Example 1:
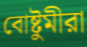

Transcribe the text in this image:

বোষ্টুমীরা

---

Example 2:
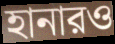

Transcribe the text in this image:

হানারও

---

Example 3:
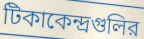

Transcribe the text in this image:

টিকাকেন্দ্রগুলির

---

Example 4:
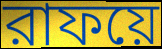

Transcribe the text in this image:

রাফয়ে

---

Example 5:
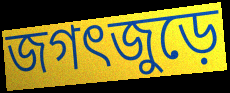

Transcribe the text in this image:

জগৎজুড়ে